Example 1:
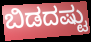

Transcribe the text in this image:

ಬಿಡದಷ್ಟು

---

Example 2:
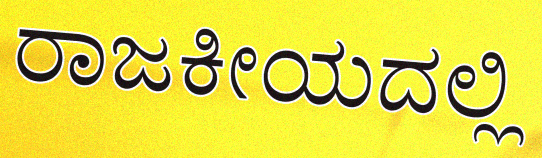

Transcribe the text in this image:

ರಾಜಕೀಯದಲ್ಲಿ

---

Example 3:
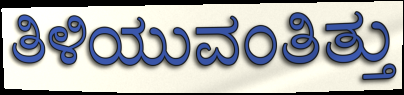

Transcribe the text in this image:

ತಿಳಿಯುವಂತಿತ್ತು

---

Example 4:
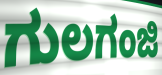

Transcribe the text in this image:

ಗುಲಗಂಜಿ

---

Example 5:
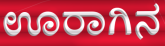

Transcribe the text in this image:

ಊರಾಗಿನ